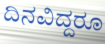
ದಿನವಿದ್ದರೂ